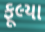
ફૂલ્યા